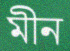
মীন